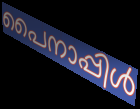
പൈനാപ്പിൾ